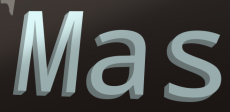
Mas